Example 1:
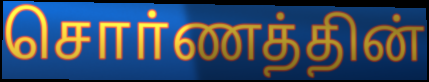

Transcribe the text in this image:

சொர்ணத்தின்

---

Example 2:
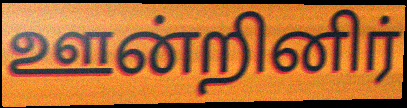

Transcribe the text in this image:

ஊன்றினிர்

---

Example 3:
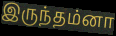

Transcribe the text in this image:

இருந்தம்னா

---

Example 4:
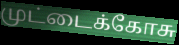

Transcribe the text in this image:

முட்டைக்கோசு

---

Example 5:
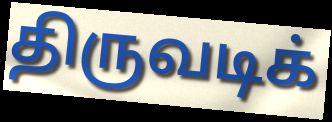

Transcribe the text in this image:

திருவடிக்